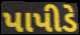
પાપીડે